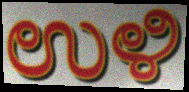
ಉಳಿ